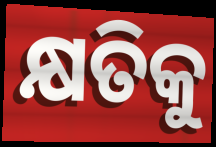
କ୍ଷତିକୁ